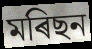
মৰিছন